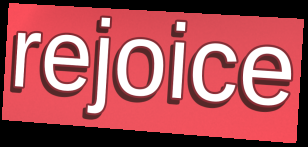
rejoice